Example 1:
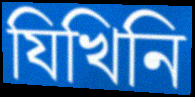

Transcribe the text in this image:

যিখিনি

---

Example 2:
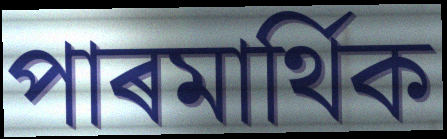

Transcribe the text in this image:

পাৰমাৰ্থিক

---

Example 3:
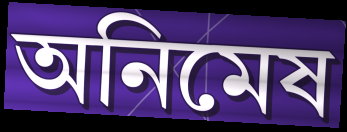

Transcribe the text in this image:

অনিমেষ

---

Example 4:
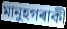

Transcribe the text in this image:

মানুহগৰাকী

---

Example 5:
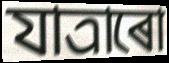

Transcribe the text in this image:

যাত্ৰাৰো